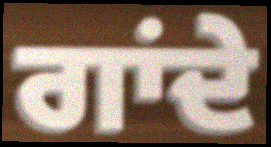
ਗਾਂਦੇ